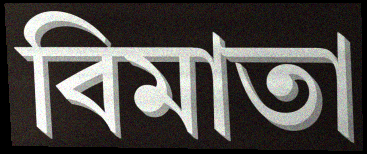
বিমাতা